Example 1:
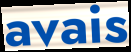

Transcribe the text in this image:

avais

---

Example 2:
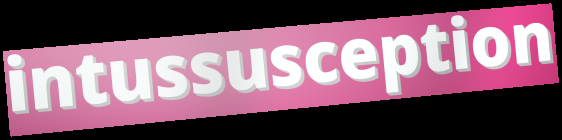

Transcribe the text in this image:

intussusception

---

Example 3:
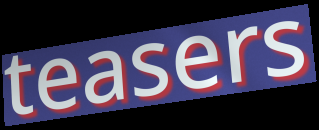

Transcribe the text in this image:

teasers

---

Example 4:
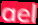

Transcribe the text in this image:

ael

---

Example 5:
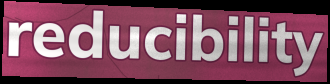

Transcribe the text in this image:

reducibility